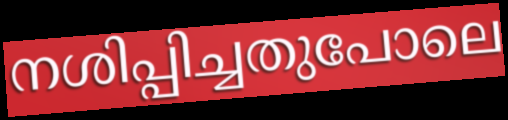
നശിപ്പിച്ചതുപോലെ